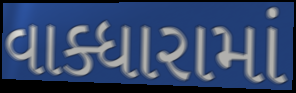
વાક્ધારામાં